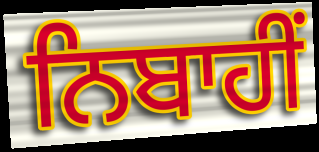
ਨਿਬਾਹੀਂ